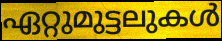
ഏറ്റുമുട്ടലുകൾ